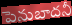
పెనుబాదనీ